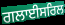
ਗਲਾਈਸਰਿਲ